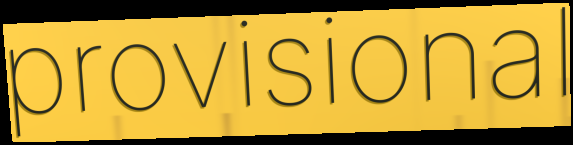
provisional